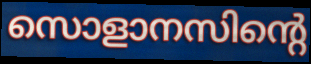
സൊളാനസിന്റെ